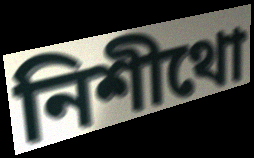
নিশীথো